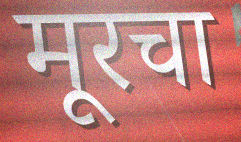
मूरचा